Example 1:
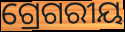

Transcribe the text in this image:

ଗ୍ରେଗରୀୟ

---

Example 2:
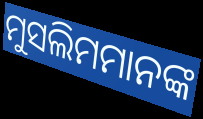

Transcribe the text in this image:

ମୁସଲିମମାନଙ୍କ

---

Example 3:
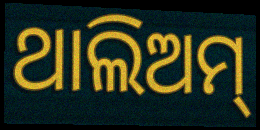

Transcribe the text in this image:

ଥାଲିଅମ୍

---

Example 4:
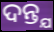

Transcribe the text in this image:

ଦନ୍ତ୍ଯ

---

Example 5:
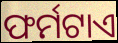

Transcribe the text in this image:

ଫର୍ମଟାଏ